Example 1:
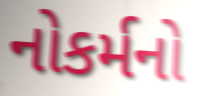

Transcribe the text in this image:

નોકર્મનો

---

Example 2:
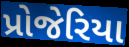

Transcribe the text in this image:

પ્રોજેરિયા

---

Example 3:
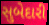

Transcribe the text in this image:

સુબેદારી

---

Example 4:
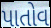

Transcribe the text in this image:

પાતોવ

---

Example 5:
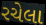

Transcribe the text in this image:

રચેલા